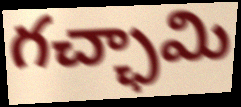
గచ్ఛామి